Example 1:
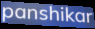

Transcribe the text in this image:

panshikar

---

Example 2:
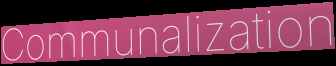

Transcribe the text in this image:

Communalization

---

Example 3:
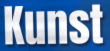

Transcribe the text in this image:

Kunst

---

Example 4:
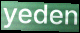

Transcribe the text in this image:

yeden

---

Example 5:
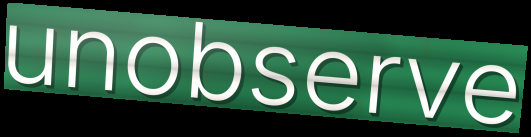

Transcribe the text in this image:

unobserve